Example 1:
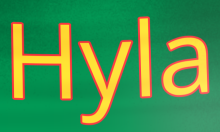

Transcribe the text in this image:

Hyla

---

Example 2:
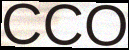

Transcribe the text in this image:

CCO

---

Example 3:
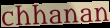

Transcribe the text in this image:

chhanan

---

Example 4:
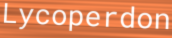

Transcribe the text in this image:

Lycoperdon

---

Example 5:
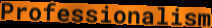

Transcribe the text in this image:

Professionalism